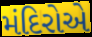
મંદિરોએ